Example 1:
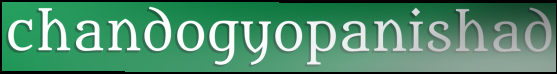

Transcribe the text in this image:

chandogyopanishad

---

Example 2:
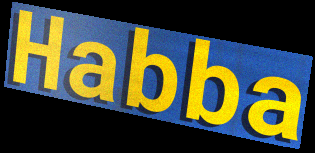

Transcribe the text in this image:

Habba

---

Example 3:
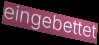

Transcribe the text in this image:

eingebettet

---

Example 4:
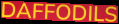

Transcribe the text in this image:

DAFFODILS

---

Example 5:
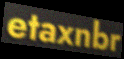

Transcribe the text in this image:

etaxnbr